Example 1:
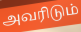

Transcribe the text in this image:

அவரிடும்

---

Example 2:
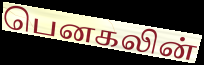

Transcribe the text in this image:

பெனகலின்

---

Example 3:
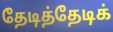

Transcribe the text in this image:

தேடித்தேடிக்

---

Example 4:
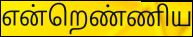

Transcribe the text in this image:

என்றெண்ணிய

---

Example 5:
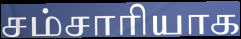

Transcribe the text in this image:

சம்சாரியாக